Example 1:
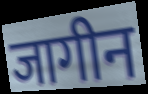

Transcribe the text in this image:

जागीन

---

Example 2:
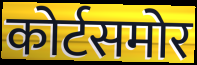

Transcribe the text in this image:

कोर्टसमोर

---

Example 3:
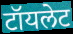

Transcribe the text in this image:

टॉयलेट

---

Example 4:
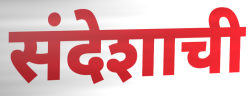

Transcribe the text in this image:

संदेशाची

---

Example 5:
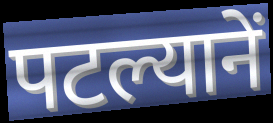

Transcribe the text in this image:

पटल्यानें